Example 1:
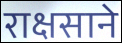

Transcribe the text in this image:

राक्षसाने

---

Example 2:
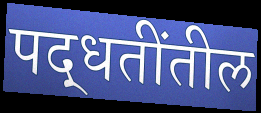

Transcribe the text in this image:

पद्धतींतील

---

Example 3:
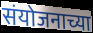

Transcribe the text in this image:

संयोजनाच्या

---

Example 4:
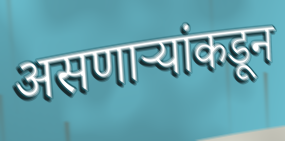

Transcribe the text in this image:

असणाऱ्यांकडून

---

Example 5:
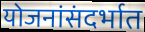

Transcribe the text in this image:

योजनांसंदर्भात